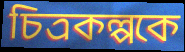
চিত্রকল্পকে